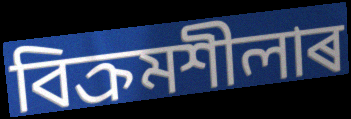
বিক্ৰমশীলাৰ